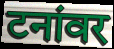
टनांवर